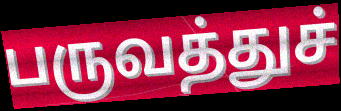
பருவத்துச்